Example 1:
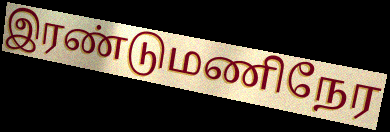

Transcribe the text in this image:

இரண்டுமணிநேர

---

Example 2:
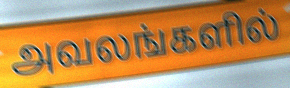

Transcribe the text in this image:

அவலங்களில்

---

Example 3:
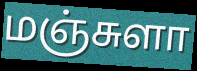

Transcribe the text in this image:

மஞ்சுளா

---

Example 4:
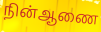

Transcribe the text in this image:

நின்ஆணை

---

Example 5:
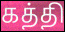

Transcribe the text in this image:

கத்தி